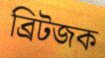
ব্রিটজক